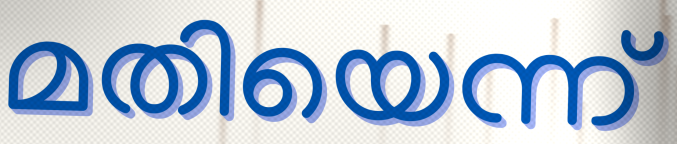
മതിയെന്ന്